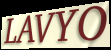
LAVYO